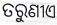
ତରୁଣୀଏ